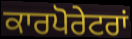
ਕਾਰਪੋਰੇਟਰਾਂ